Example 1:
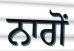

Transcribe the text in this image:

ਨਾਗੋਂ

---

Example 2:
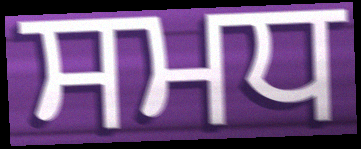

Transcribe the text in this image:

ਸਮਧ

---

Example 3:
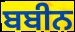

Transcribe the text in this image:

ਬਬੀਨ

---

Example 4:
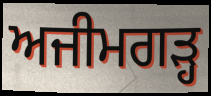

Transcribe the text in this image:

ਅਜੀਮਗੜ੍ਹ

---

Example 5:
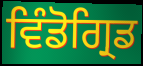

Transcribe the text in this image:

ਵਿੰਡੋਗ੍ਰਿਡ